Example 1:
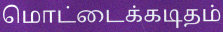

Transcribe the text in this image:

மொட்டைக்கடிதம்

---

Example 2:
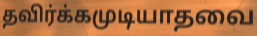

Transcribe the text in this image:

தவிர்க்கமுடியாதவை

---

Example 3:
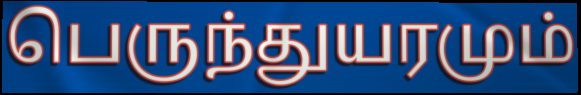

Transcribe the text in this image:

பெருந்துயரமும்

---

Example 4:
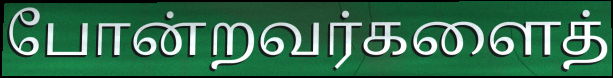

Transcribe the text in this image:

போன்றவர்களைத்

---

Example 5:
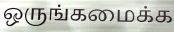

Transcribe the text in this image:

ஒருங்கமைக்க